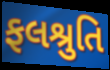
ફલશ્રુતિ